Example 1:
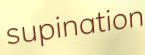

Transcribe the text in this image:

supination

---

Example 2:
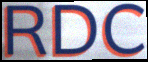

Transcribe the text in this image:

RDC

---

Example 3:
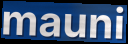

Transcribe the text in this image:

mauni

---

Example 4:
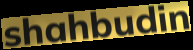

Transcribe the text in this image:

shahbudin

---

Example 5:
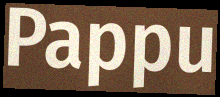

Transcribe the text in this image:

Pappu